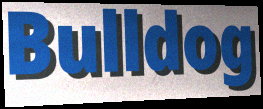
Bulldog